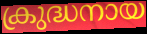
ക്രുദ്ധനായ